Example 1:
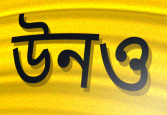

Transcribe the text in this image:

উনও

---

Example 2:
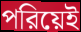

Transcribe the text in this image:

পরিয়েই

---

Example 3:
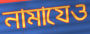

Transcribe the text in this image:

নামাযেও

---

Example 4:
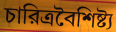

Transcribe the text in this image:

চারিত্রবৈশিষ্ট্য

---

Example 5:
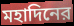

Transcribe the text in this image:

মহাদিনের